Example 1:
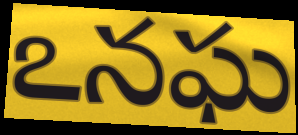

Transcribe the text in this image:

ఽనఘ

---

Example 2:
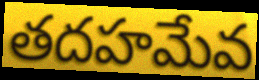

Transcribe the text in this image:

తదహమేవ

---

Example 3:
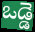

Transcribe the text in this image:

ఒడ్డె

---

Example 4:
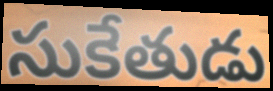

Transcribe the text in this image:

సుకేతుడు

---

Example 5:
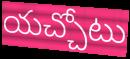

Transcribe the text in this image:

యచ్చోటు